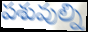
పశువుల్ని